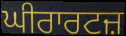
ਘੀਰਾਰਟਜ਼